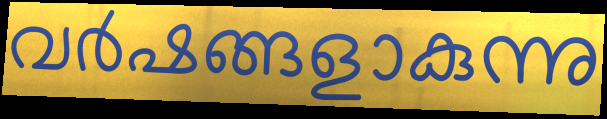
വർഷങ്ങളാകുന്നു